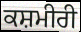
ਕਸ਼ਮੀਰੀ